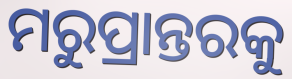
ମରୁପ୍ରାନ୍ତରକୁ